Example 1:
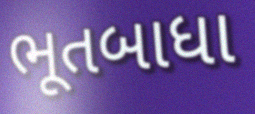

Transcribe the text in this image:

ભૂતબાધા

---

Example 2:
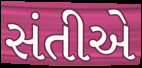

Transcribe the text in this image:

સંતીએ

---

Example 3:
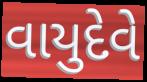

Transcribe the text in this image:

વાયુદેવે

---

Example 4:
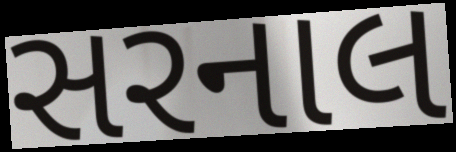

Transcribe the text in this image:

સરનાલ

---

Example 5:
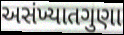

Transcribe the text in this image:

અસંખ્યાતગુણા